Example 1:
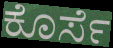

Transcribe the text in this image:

ಕೊರ್ಸೆ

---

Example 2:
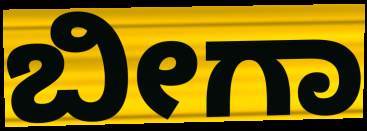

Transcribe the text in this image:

ಬೀಗಾ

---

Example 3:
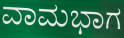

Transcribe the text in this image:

ವಾಮಭಾಗ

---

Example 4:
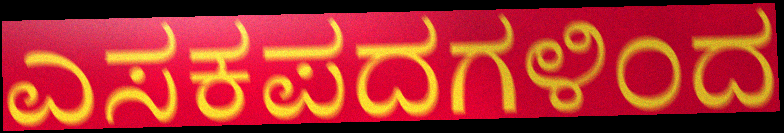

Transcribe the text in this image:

ಎಸಕಪದಗಳಿಂದ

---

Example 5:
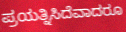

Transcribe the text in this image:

ಪ್ರಯತ್ನಿಸಿದೆವಾದರೂ